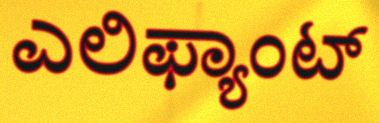
ಎಲಿಫ್ಯಾಂಟ್